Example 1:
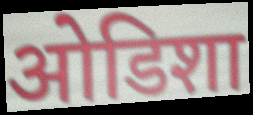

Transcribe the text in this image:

ओडिशा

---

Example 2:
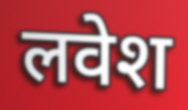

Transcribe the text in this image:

लवेश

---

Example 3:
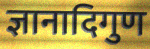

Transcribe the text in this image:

ज्ञानादिगुण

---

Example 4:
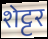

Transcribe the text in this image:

शेट्टर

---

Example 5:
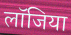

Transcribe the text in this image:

लॉजिया